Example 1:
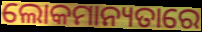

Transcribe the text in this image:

ଲୋକମାନ୍ୟତାରେ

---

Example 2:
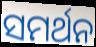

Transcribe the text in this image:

ସମର୍ଥନ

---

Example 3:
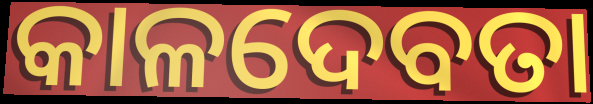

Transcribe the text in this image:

କାଳଦେବତା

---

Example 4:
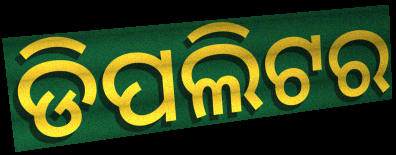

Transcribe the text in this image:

ଡିପଲିଟର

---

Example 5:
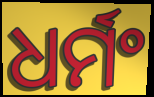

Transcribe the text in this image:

ଧର୍ମଂ